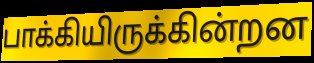
பாக்கியிருக்கின்றன